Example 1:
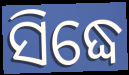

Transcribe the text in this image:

ସିଦ୍ଧେ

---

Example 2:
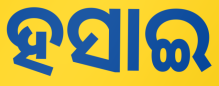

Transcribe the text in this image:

ହସାଇ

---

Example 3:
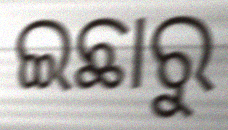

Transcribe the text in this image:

ଇଛାରୁ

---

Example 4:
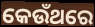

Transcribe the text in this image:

କେଉଁଥରେ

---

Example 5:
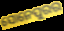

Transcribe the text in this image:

ସୋନେପୁରର